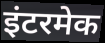
इंटरमेक